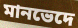
মানভেদে